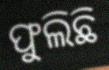
ଫୁଲିଛି